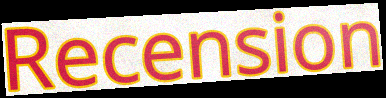
Recension